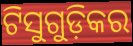
ଟିସୁଗୁଡ଼ିକର